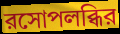
রসোপলব্ধির